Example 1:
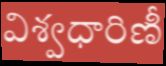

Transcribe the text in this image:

విశ్వధారిణీ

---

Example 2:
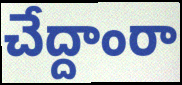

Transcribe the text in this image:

చేద్దాంరా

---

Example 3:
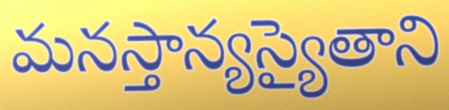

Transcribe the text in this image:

మనస్తాన్యస్యైతాని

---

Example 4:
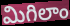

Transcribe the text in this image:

మిగిలాం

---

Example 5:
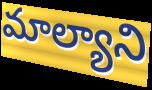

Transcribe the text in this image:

మాల్యాని